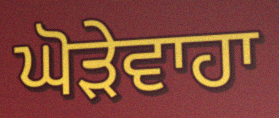
ਘੋੜੇਵਾਹਾ